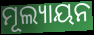
ମୂଲ୍ୟାୟନ